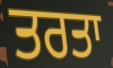
ਤਰਤਾ